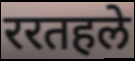
ररतहले